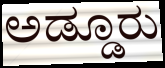
ಅಡ್ಡೂರು